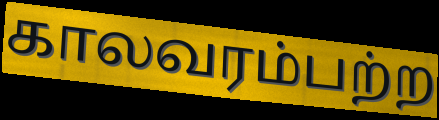
காலவரம்பற்ற